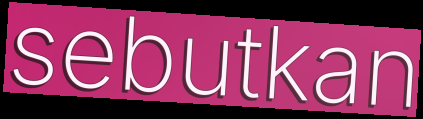
sebutkan